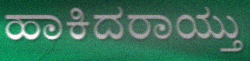
ಹಾಕಿದರಾಯ್ತು